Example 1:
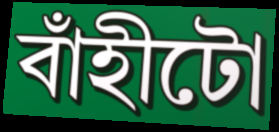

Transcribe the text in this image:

বাঁহীটো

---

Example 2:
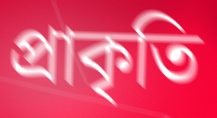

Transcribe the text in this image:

প্ৰাকৃতি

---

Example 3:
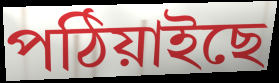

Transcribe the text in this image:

পঠিয়াইছে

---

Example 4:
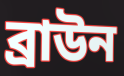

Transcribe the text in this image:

ব্ৰাউন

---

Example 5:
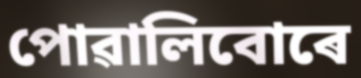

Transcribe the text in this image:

পোৱালিবোৰে